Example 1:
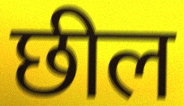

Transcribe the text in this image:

छील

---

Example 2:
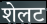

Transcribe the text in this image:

शेलट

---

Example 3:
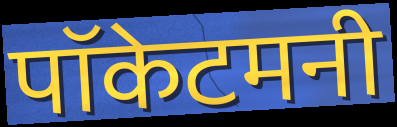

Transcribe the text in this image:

पॉकेटमनी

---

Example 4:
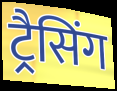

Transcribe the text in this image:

ट्रैसिंग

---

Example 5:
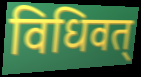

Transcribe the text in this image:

विधिवत्